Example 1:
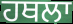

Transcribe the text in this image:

ਹਥਲਾ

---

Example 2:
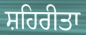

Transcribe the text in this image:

ਸ਼ਹਿਰੀਤਾ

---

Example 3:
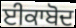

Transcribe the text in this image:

ਈਕਾਬੋਦ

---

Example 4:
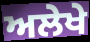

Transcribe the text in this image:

ਅਲੇਖੇ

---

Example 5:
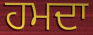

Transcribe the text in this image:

ਹਮਦਾ